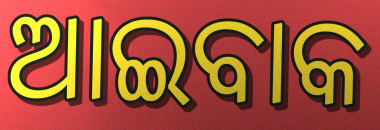
ଆଇବାକ